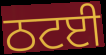
ਠਟਈ